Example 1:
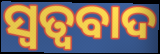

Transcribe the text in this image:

ସ୍ୱତ୍ୱବାଦ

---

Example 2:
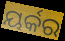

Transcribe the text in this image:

ୟର୍କର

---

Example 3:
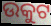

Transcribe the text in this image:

ଉକୁଟ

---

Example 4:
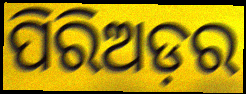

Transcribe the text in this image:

ପିରିଅଡ଼ର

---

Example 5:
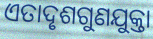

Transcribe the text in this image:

ଏତାଦୃଶଗୁଣଯୁକ୍ତା